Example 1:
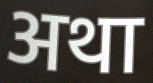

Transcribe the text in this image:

अथा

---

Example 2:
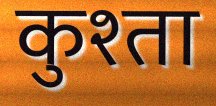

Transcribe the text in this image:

कुश्ता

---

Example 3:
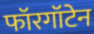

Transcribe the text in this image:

फॉरगॉटेन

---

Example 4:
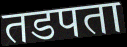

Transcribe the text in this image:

तडपता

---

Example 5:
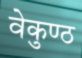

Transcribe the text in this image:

वेकुण्ठ